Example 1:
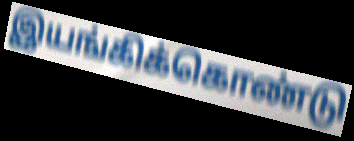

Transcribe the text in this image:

இயங்கிக்கொண்டு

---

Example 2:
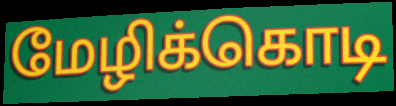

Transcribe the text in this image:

மேழிக்கொடி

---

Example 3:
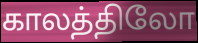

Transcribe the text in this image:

காலத்திலோ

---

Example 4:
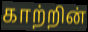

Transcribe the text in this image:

காற்றின்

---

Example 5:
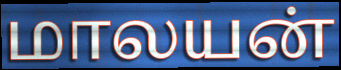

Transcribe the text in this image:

மாலயன்